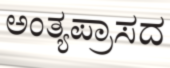
ಅಂತ್ಯಪ್ರಾಸದ